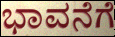
ಭಾವನೆಗೆ